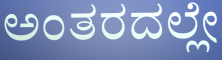
ಅಂತರದಲ್ಲೇ